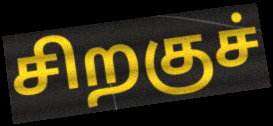
சிறகுச்